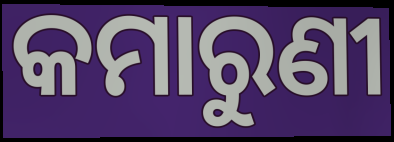
କମାରୁଣୀ